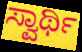
ಸ್ವಾರ್ಥಿ